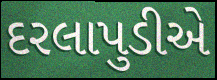
દરલાપુડીએ